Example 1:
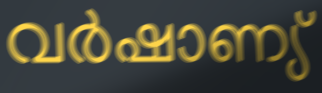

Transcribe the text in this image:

വർഷാണ്യ്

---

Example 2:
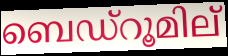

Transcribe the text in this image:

ബെഡ്റൂമില്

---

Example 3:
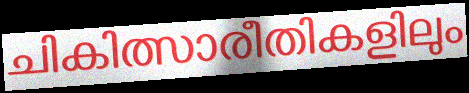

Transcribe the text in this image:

ചികിത്സാരീതികളിലും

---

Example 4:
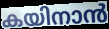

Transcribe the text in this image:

കയിനാൻ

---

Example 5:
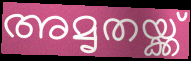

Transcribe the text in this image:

അമൃതയ്ക്ക്